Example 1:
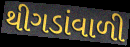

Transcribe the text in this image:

થીગડાંવાળી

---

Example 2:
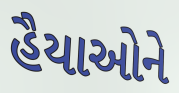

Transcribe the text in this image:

હૈયાઓને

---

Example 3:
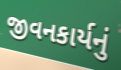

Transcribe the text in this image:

જીવનકાર્યનું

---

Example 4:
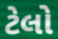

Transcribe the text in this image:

ટેલો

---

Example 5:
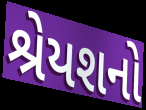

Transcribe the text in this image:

શ્રેયશનો